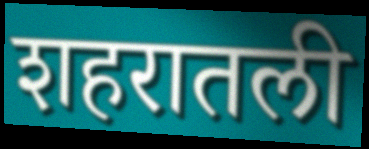
शहरातली